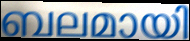
ബലമായി